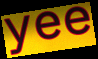
yee